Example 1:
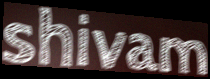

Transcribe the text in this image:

shivam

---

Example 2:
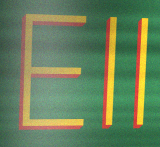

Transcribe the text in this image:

Ell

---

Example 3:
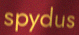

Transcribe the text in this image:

spydus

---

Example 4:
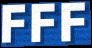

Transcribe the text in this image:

FFF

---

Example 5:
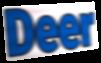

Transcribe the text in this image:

Deer